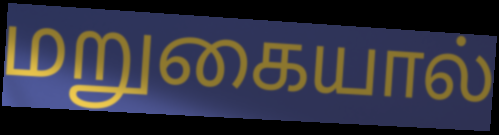
மறுகையால்